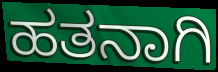
ಹತನಾಗಿ